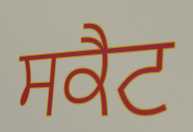
ਸਕੈਟ